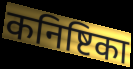
कनिष्टिका